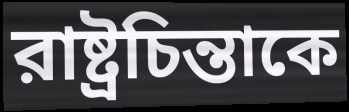
রাষ্ট্রচিন্তাকে